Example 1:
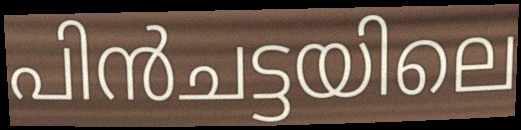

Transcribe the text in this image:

പിൻചട്ടയിലെ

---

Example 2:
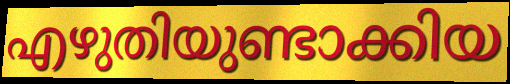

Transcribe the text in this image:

എഴുതിയുണ്ടാക്കിയ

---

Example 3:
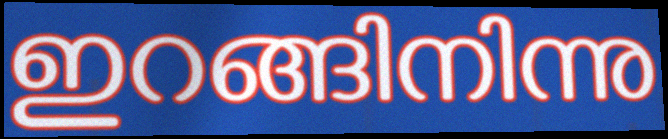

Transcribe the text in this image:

ഇറങ്ങിനിന്നു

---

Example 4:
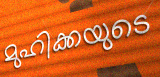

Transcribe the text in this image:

മുഹിക്കയുടെ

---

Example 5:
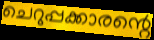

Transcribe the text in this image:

ചെറുപ്പക്കാരന്റെ